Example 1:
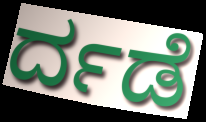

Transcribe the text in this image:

ರ್ದಡೆ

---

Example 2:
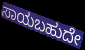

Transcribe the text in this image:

ಸಾಯಬಹುದೇ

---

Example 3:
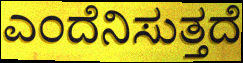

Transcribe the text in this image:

ಎಂದೆನಿಸುತ್ತದೆ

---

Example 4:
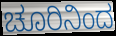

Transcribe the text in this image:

ಚೂರಿನಿಂದ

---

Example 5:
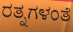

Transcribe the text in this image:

ರತ್ನಗಳಂತೆ